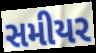
સમીયર